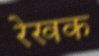
रेखक